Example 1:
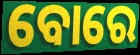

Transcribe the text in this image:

ବୋରେ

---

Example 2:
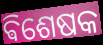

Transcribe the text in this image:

ଵିଶେଷକ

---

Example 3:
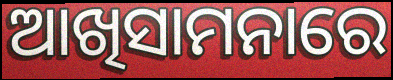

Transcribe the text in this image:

ଆଖିସାମନାରେ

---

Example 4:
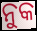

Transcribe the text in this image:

ନୁକ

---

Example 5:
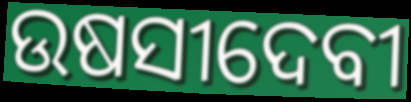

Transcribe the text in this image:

ଉଷସୀଦେବୀ